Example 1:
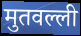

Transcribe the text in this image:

मुतवल्ली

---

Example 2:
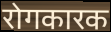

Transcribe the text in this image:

रोगकारक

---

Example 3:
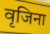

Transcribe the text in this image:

वृजिना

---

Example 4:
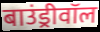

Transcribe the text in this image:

बाउंड्रीवॉल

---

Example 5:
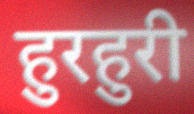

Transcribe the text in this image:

हुरहुरी